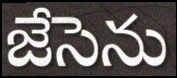
జేసెను